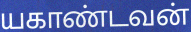
யகாண்டவன்